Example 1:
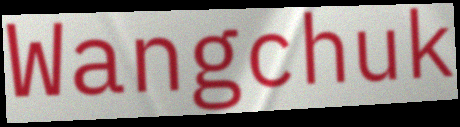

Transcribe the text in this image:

Wangchuk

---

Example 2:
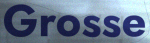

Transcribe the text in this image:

Grosse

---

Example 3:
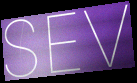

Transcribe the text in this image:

SEV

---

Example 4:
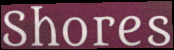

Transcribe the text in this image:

Shores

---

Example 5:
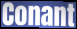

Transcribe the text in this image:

Conant